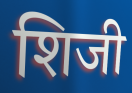
शिजी